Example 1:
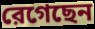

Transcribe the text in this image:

রেগেছেন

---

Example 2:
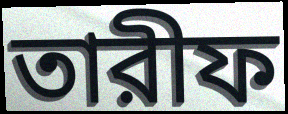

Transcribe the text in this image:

তারীফ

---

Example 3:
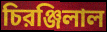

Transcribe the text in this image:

চিরঞ্জিলাল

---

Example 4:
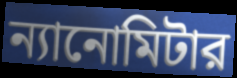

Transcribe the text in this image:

ন্যানোমিটার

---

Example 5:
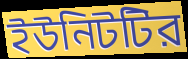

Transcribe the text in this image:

ইউনিটটির